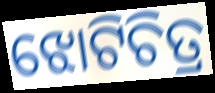
ଝୋଟିଚିତ୍ର